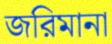
জরিমানা